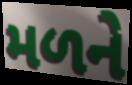
મળને